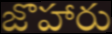
జొహారు